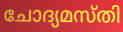
ചോദ്യമസ്തി